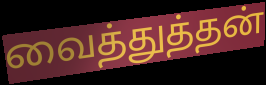
வைத்துத்தன்